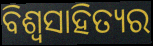
ବିଶ୍ଵସାହିତ୍ୟର